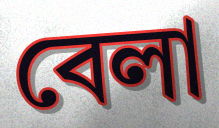
বেলা